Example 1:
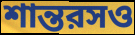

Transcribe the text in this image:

শান্তরসও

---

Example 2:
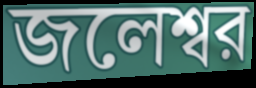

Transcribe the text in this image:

জলেশ্বর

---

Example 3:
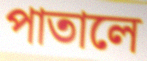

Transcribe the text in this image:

পাতালে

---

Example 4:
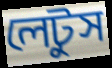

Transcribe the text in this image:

লেটুস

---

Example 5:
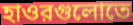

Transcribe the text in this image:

হাওরগুলোতে